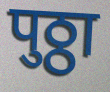
पुठ्ठा